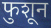
फुशून